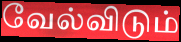
வேல்விடும்